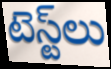
టెస్ట్‌లు